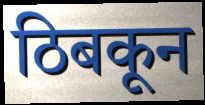
ठिबकून